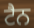
ਟੈਨ